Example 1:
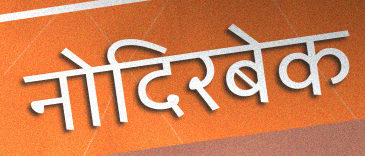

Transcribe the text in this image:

नोदिरबेक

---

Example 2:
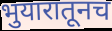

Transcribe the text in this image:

भुयारातूनच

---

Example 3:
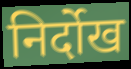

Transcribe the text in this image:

निर्दोख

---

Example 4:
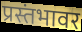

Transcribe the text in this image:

प्रस्तंभावर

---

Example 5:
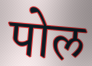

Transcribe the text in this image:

पोल